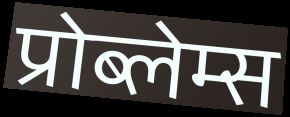
प्रोब्लेम्स